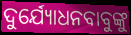
ଦୁର୍ଯ୍ୟୋଧନବାବୁଙ୍କୁ